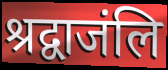
श्रद्वाजंलि